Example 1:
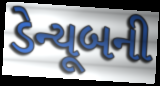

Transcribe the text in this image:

ડેન્યૂબની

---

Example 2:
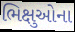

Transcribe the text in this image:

ભિક્ષુઓના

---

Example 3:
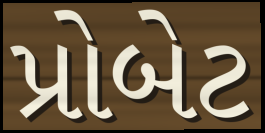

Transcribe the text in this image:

પ્રોબેટ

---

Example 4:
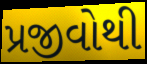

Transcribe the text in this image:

પ્રજીવોથી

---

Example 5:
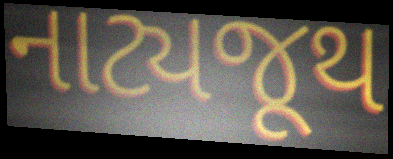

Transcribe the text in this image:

નાટ્યજૂથ